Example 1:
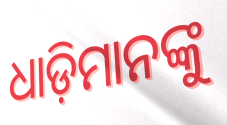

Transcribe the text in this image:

ଧାଡ଼ିମାନଙ୍କୁ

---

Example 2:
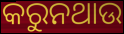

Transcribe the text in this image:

କରୁନଥାଉ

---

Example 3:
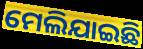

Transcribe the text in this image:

ମେଲିଯାଇଛି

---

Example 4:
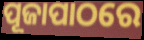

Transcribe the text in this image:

ପୂଜାପାଠରେ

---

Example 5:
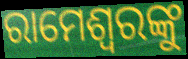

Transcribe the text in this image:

ରାମେଶ୍ୱରଙ୍କୁ